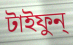
টাইফুন্